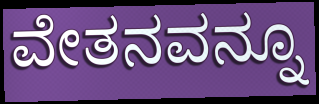
ವೇತನವನ್ನೂ